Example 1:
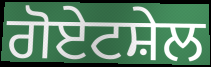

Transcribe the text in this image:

ਗੋਏਟਸ਼ੇਲ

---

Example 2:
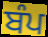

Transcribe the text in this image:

ਬੰਪ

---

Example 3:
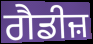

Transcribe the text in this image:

ਗੈਡੀਜ਼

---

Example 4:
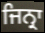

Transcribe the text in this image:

ਜਿਨ੍ਰਾ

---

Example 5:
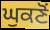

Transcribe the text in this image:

ਘੁਕਣੋਂ